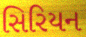
સિરિયન